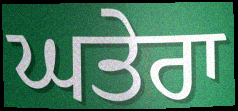
ਘਤੇਰਾ